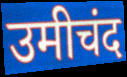
उमीचंद